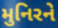
મુનિરને